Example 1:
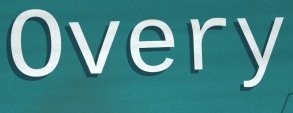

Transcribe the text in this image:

Overy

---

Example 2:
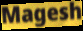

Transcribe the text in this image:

Magesh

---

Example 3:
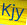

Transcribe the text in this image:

Kjy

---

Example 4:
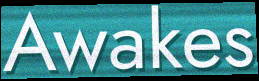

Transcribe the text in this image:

Awakes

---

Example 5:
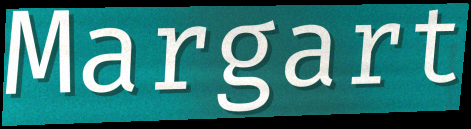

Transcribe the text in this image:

Margart